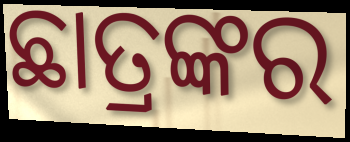
ଛାତ୍ରଙ୍କର